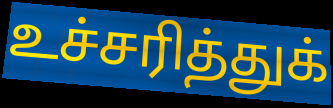
உச்சரித்துக்